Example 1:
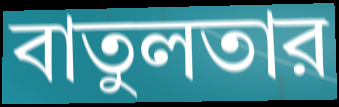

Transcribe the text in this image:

বাতুলতার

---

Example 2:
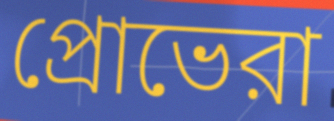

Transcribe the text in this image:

প্রোভেরা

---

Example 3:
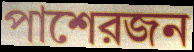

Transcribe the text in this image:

পাশেরজন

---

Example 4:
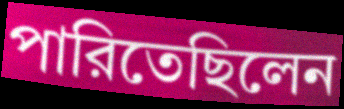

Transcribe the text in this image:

পারিতেছিলেন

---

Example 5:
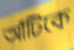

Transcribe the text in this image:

আঁটিকে